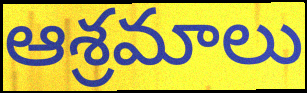
ఆశ్రమాలు